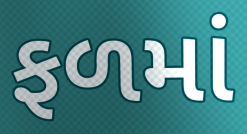
ફળમાં